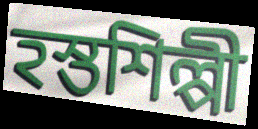
হস্তশিল্পী